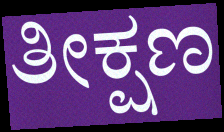
ತೀಕ್ಷಣ